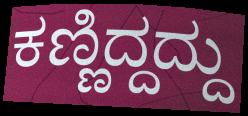
ಕಣ್ಣಿದ್ದದ್ದು